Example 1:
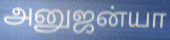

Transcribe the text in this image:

அனுஜன்யா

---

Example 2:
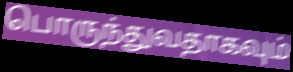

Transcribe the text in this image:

பொருந்துவதாகவும்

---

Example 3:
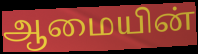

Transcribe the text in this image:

ஆமையின்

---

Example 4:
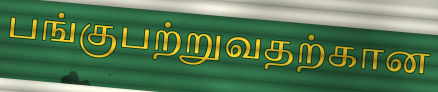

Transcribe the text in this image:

பங்குபற்றுவதற்கான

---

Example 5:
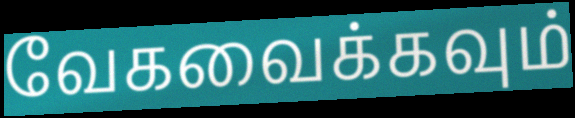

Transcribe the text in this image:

வேகவைக்கவும்